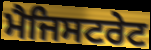
ਮੈਜਿਸਟਰੇਟ